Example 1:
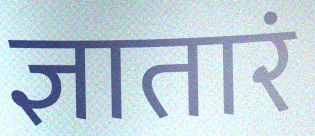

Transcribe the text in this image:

ज्ञातारं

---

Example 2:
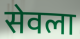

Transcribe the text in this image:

सेवला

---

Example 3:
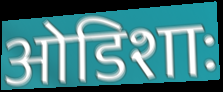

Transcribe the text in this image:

ओडिशाः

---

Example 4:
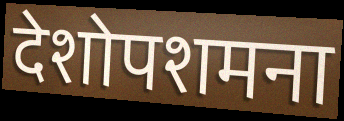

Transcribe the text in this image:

देशोपशमना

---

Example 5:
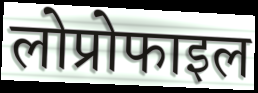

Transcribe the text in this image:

लोप्रोफाइल